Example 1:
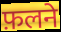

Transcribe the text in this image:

फ़लने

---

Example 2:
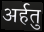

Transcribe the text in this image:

अर्हतु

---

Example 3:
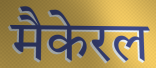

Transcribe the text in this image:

मैकेरल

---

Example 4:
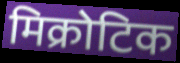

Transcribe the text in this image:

मिक्रोटिक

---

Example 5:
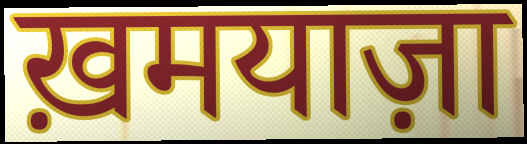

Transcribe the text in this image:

ख़मयाज़ा